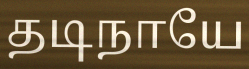
தடிநாயே